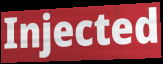
Injected